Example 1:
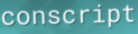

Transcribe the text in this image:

conscript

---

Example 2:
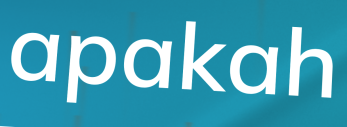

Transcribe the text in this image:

apakah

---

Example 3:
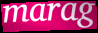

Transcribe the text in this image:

marag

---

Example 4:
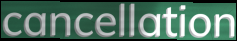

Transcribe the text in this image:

cancellation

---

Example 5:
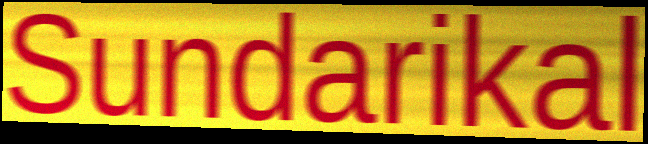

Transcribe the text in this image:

Sundarikal